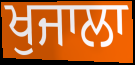
ਖੁਜਾਲਾ